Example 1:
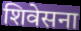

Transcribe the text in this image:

शिवेसना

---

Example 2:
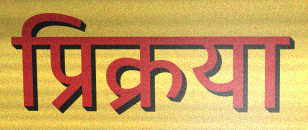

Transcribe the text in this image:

प्रिक्रया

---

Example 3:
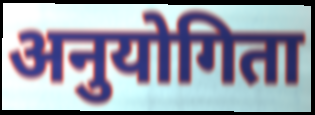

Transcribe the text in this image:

अनुयोगिता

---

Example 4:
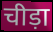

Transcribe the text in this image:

चीड़ा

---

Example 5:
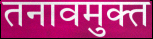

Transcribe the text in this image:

तनावमुक्त